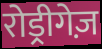
रोड्रीगेज़